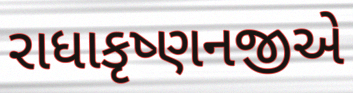
રાધાકૃષ્ણનજીએ